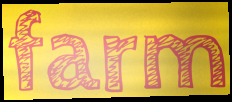
farm